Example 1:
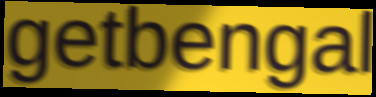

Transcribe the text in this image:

getbengal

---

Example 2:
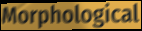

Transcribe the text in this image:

Morphological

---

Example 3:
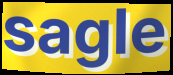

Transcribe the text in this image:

sagle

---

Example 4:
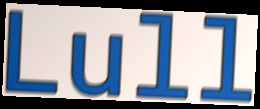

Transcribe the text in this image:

Lull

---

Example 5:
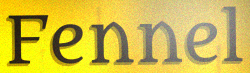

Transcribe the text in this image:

Fennel